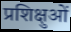
प्रशिक्षुओं